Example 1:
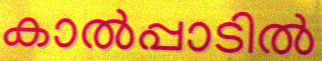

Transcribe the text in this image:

കാൽപ്പാടിൽ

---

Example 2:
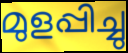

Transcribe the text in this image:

മുളപ്പിച്ചു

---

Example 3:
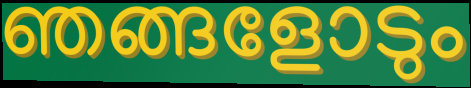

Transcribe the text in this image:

ഞങ്ങളോടും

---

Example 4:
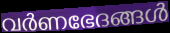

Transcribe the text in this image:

വർണഭേദങ്ങൾ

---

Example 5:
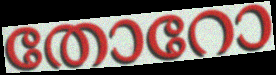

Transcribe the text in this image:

തോറോ